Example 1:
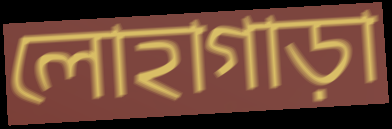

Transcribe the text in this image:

লোহাগাড়া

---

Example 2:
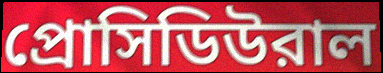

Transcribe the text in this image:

প্রোসিডিউরাল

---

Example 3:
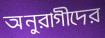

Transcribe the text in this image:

অনুরাগীদের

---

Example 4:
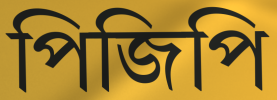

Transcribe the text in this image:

পিজিপি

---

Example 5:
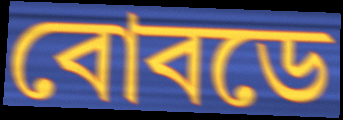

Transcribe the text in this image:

বোবডে